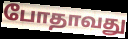
போதாவது